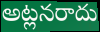
అట్లనరాదు